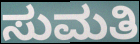
ಸುಮತಿ